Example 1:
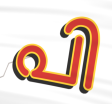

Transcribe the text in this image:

പി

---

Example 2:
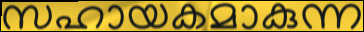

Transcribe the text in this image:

സഹായകമാകുന്ന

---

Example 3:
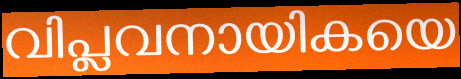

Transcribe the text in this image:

വിപ്ലവനായികയെ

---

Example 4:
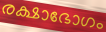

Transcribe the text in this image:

രക്ഷാഭോഗം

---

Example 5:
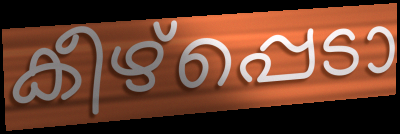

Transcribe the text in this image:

കീഴ്പ്പെടാ